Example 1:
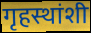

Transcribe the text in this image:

गृहस्थांशी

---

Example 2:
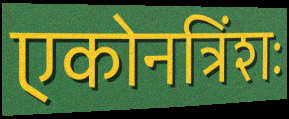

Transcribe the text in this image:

एकोनत्रिंशः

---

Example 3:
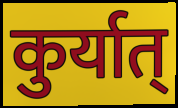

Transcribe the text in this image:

कुर्यात्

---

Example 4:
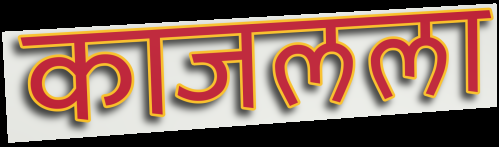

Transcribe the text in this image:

काजलला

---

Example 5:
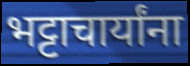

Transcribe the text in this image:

भट्टाचार्यांना